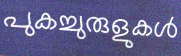
പുകച്ചുരുളുകൾ